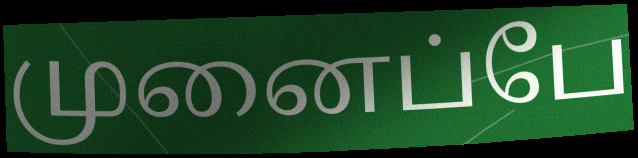
முனைப்பே